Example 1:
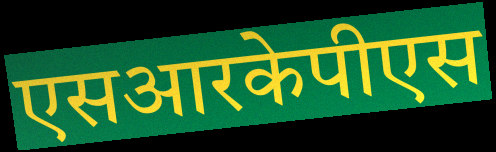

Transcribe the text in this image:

एसआरकेपीएस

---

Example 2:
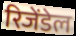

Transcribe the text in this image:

रिजेंडेल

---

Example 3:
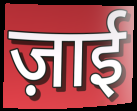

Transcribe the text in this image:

ज़ाई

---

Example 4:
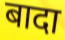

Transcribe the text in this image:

बादा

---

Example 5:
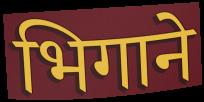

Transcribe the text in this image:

भिगाने